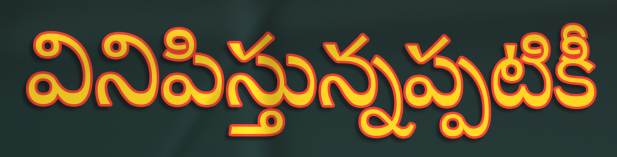
వినిపిస్తున్నప్పటికీ